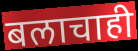
बलाचाही